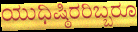
ಯುಧಿಷ್ಠಿರರಿಬ್ಬರೂ